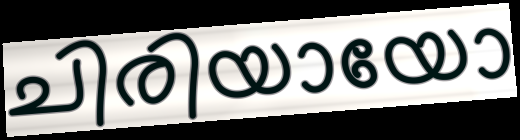
ചിരിയായോ